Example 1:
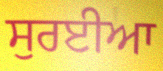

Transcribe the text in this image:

ਸੁਰਈਆ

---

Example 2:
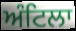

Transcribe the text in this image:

ਅੰਟਿਲਾ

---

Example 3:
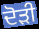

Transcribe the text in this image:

ਦੋੜੀ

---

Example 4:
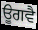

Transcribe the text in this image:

ਊਗਵੈ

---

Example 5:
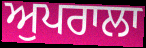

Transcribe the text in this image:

ਅੁਪਰਾਲਾ